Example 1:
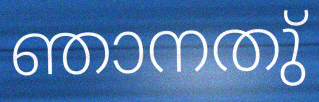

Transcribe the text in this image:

ഞാനതു്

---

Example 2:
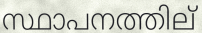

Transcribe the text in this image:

സ്ഥാപനത്തില്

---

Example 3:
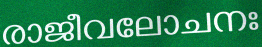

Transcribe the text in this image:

രാജീവലോചനഃ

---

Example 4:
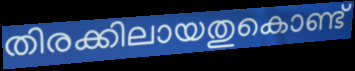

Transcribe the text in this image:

തിരക്കിലായതുകൊണ്ട്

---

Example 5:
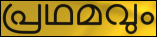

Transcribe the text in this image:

പ്രഥമവും